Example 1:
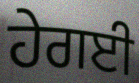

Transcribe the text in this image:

ਹੇਗਈ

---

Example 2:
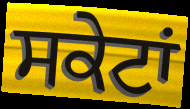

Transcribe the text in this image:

ਸਕੇਟਾਂ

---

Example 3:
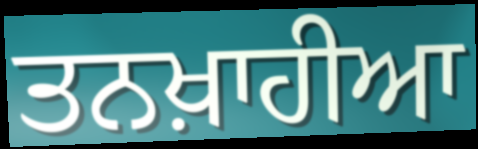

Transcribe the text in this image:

ਤਨਖ਼ਾਹੀਆ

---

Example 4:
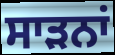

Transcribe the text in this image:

ਸਾੜਨਾਂ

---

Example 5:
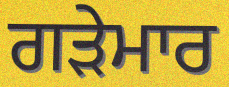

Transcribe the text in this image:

ਗੜੇਮਾਰ